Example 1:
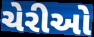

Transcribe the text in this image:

ચેરીઓ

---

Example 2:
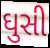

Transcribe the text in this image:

ઘુસી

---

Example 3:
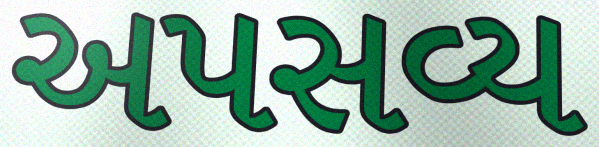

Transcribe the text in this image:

અપસવ્ય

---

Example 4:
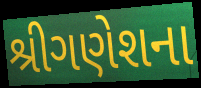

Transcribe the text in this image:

શ્રીગણેશના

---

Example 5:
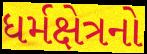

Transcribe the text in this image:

ધર્મક્ષેત્રનો